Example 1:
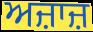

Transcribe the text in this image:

ਅਜ਼ਾਜ਼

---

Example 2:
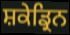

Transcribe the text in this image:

ਸ਼ਕੇਡ੍ਰਿਨ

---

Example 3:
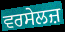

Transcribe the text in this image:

ਵਰਸੇਲਜ਼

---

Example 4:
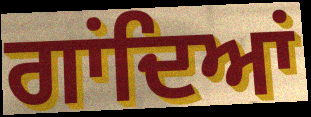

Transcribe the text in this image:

ਗਾਂਦਿਆਂ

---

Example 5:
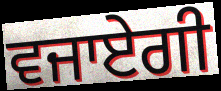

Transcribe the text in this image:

ਵਜਾਏਗੀ